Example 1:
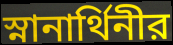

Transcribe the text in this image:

স্নানার্থিনীর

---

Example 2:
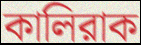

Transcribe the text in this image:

কালিরাক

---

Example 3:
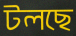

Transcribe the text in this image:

টলছে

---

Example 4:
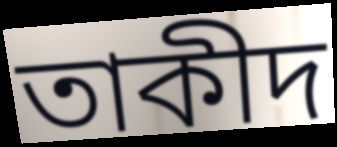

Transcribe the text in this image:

তাকীদ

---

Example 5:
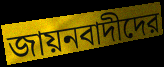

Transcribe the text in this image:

জায়নবাদীদের